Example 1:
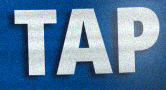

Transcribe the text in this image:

TAP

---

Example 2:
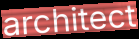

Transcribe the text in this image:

architect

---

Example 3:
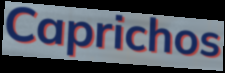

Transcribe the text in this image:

Caprichos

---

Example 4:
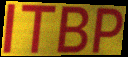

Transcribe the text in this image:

ITBP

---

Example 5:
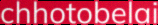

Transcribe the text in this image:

chhotobelai